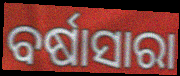
ବର୍ଷାସାରା